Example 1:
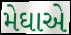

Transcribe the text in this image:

મેઘાએ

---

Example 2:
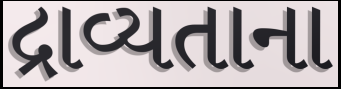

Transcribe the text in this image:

દ્રાવ્યતાના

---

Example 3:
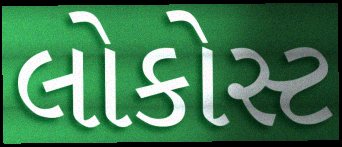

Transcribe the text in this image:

લોકોસ્ટ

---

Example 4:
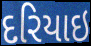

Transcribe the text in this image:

દરિયાઇ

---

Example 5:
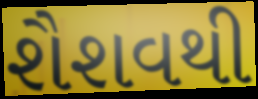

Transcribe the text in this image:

શૈશવથી